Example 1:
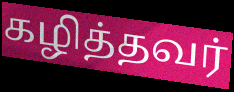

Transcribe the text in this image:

கழித்தவர்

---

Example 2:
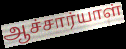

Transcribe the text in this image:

ஆச்சார்யாள்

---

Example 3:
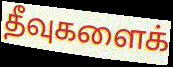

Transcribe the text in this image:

தீவுகளைக்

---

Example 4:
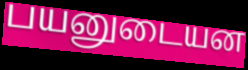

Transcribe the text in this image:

பயனுடையன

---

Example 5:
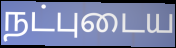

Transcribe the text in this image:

நட்புடைய